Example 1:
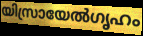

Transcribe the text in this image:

യിസ്രായേൽഗൃഹം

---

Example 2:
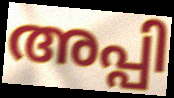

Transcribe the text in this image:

അപ്പി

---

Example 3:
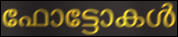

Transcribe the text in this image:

ഫോട്ടോകൾ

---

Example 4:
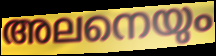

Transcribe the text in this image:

അലനെയും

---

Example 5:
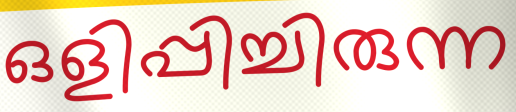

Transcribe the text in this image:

ഒളിപ്പിച്ചിരുന്ന